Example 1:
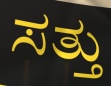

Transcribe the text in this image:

ಸತ್ತು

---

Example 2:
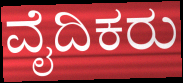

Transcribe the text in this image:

ವೈದಿಕರು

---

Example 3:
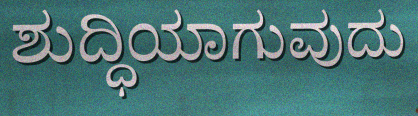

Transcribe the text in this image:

ಶುದ್ಧಿಯಾಗುವುದು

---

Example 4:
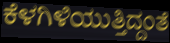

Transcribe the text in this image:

ಕೆಳಗಿಳಿಯುತ್ತಿದ್ದಂತೆ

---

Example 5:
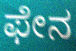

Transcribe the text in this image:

ಫೇನ